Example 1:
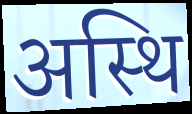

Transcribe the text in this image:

अस्थि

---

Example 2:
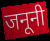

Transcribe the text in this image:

जनूनी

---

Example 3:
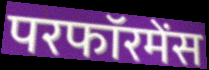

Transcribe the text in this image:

परफॉरमेंस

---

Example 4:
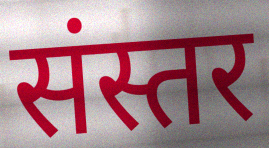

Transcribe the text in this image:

संस्तर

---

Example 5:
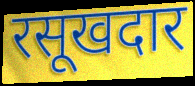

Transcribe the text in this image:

रसूखदार